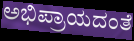
ಅಭಿಪ್ರಾಯದಂತೆ